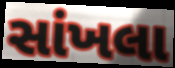
સાંખલા